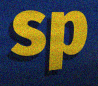
sp